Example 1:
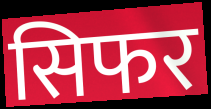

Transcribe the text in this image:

सिफर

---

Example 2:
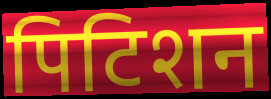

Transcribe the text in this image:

पिटिशन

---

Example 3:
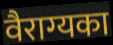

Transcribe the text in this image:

वैराग्यका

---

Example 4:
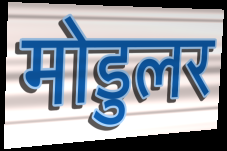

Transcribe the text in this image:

मोडुलर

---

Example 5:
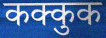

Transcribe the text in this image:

कक्कुक